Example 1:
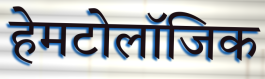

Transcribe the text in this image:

हेमटोलॉजिक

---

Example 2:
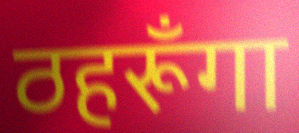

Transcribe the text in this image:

ठहरूँगा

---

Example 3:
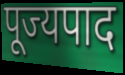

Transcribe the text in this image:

पूज्यपाद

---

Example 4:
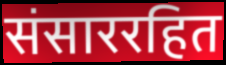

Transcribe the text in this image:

संसाररहित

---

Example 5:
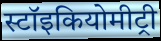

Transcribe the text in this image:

स्टॉइकियोमीट्री